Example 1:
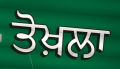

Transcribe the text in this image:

ਤੋਖ਼ਲਾ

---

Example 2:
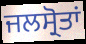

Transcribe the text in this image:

ਜਲਸ੍ਰੋਤਾਂ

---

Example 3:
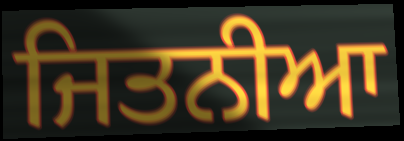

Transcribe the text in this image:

ਜਿਤਨੀਆ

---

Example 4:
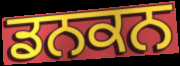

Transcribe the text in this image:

ਡਨਕਨ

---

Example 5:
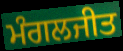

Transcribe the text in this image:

ਮੰਗਲਜੀਤ